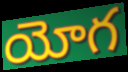
యోగ